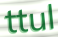
ttul